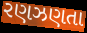
રણઝણતા